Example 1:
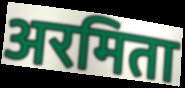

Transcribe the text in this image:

अरमिता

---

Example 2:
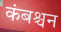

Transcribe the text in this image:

कंबश्चन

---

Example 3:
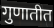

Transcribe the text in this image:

गुणातीत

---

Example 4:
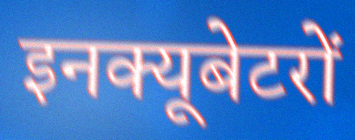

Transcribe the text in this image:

इनक्यूबेटरों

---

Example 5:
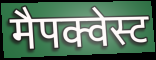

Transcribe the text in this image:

मैपक्वेस्ट